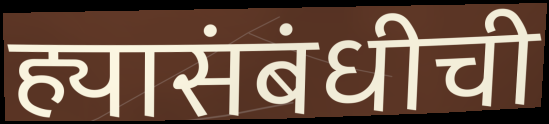
ह्यासंबंधीची